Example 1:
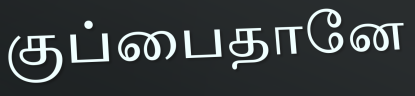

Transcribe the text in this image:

குப்பைதானே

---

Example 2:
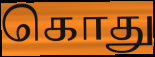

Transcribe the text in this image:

கொது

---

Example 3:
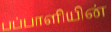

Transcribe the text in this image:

பப்பாளியின்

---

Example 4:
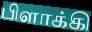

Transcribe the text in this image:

பிளாக்கி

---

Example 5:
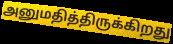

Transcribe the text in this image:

அனுமதித்திருக்கிறது